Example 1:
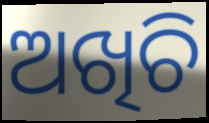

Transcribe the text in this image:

ଅଖିଚି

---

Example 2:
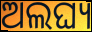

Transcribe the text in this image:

ଅଲଘ୍ୟ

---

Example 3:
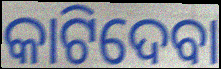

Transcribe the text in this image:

କାଟିଦେବା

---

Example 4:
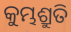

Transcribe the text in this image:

କୁମ୍ଭଶ୍ରୁତି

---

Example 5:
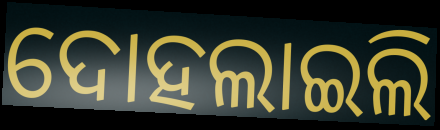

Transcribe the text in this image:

ଦୋହଲାଇଲି